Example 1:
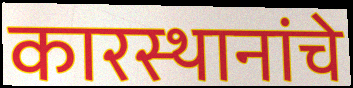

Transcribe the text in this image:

कारस्थानांचे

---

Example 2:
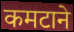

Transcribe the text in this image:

कमटाने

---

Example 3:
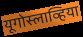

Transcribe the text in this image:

यूगोस्लाव्हिया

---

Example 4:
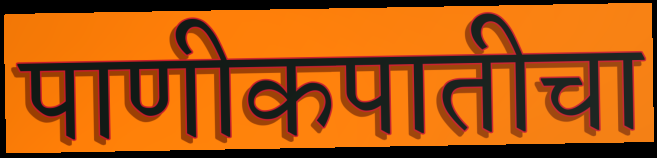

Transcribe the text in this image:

पाणीकपातीचा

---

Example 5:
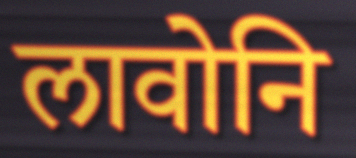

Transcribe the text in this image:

लावोनि